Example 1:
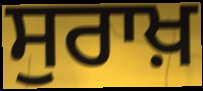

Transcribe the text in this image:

ਸੁਰਾਖ਼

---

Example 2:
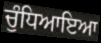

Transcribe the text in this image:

ਚੁੰਧਿਆਇਆ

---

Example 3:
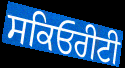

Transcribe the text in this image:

ਸਕਿਓਰੀਟੀ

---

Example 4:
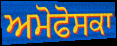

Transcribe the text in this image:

ਅਮੋਫੋਸਕਾ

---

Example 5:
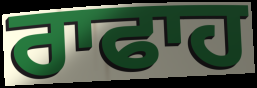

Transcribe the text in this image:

ਰਾਫਾਹ